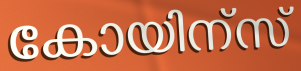
കോയിന്സ്